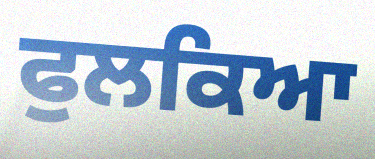
ਫੁਲਕਿਆ